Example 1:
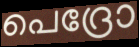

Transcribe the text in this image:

പെദ്രോ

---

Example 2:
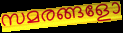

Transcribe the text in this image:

സമരങ്ങളോ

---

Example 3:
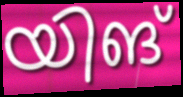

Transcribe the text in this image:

യിങ്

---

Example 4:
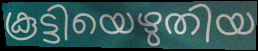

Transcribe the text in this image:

കൂട്ടിയെഴുതിയ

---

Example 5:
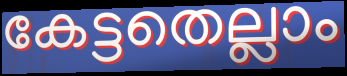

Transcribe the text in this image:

കേട്ടതെല്ലാം